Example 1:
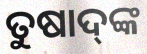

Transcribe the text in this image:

ତୁଷାଦ୍‌ଙ୍କ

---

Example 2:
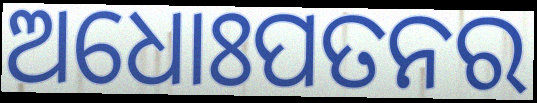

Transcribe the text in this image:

ଅଧୋଃପତନର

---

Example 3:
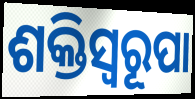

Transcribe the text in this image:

ଶକ୍ତିସ୍ବରୂପା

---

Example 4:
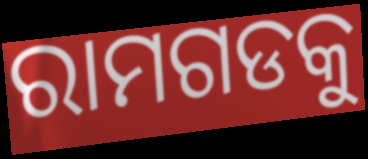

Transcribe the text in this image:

ରାମଗଡକୁ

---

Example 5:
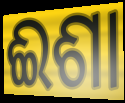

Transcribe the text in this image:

ଈଶା